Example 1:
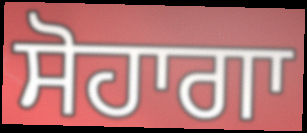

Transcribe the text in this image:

ਸੋਹਾਗਾ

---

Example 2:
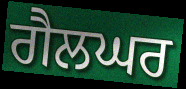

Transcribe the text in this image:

ਗੈਲਘਰ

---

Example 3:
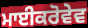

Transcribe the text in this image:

ਮਾਈਕਰੋਵੇਵ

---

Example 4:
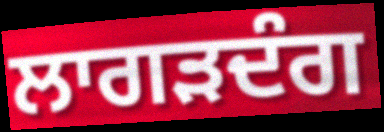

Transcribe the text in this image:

ਲਾਗੜਦੰਗ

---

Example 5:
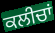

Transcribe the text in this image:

ਕਲੀਚਾਂ